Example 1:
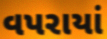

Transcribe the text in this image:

વપરાયાં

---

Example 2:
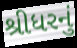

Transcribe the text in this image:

શ્રીધરનું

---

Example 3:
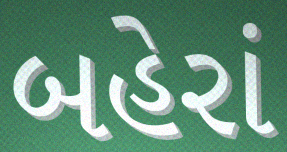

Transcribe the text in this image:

બહેરાં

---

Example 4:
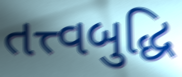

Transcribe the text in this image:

તત્ત્વબુદ્ધિ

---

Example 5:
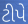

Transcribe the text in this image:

ટીપે